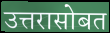
उत्तरासोबत